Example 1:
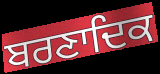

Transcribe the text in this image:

ਬਰਣਾਦਿਕ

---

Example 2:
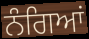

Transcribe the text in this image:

ਨੰਗਿਆਂ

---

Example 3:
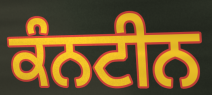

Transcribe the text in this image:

ਕੰਨਟੀਨ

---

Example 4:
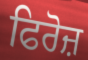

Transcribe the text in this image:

ਫਿਰੋਜ਼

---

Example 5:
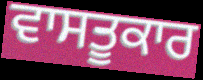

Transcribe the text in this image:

ਵਾਸਤੂਕਾਰ